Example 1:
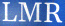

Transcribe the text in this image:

LMR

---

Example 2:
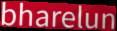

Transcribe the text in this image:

bharelun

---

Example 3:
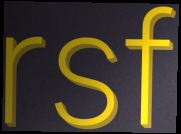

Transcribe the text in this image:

rsf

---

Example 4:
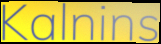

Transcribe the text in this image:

Kalnins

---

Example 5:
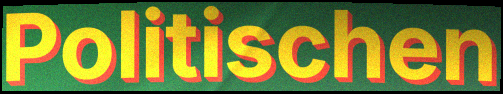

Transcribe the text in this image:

Politischen